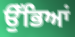
ਉੱਭਿਆਂ